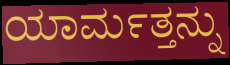
ಯಾರ್ಮತ್ತನ್ನು